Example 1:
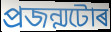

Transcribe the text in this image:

প্ৰজন্মটোৰ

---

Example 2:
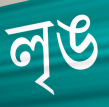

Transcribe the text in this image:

লৃঙ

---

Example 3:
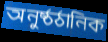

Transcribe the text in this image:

অনুষ্ঠঠানিক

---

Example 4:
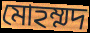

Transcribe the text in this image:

মোহম্মদ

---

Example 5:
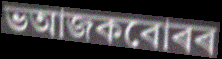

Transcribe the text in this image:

ভআজকবোৰৰ